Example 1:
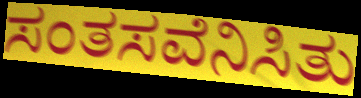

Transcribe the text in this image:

ಸಂತಸವೆನಿಸಿತು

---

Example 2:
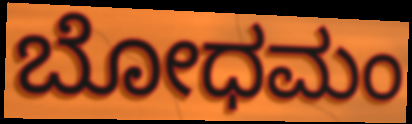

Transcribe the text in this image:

ಬೋಧಮಂ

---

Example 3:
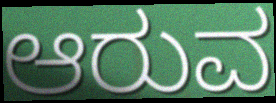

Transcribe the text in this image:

ಆರುವ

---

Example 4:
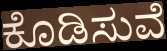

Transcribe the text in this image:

ಕೊಡಿಸುವೆ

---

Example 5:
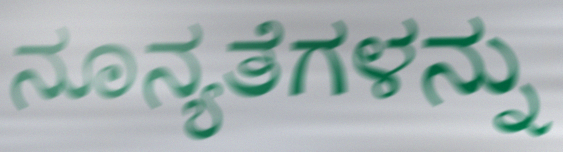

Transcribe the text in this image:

ನೂನ್ಯತೆಗಳನ್ನು